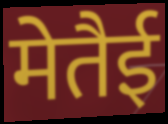
मेतैई